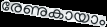
രേണുകായാം